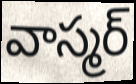
వాస్మర్